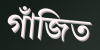
গাঁজিত